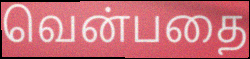
வென்பதை